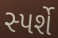
સ્પર્શે